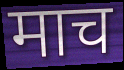
माच